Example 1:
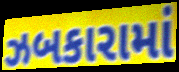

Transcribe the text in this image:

ઝબકારામાં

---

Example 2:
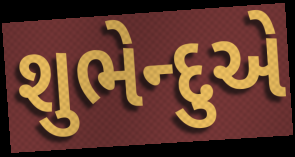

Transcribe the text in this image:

શુભેન્દુએ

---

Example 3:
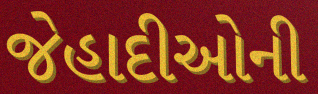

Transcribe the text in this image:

જેહાદીઓની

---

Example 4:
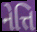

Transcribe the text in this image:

નેત્તિ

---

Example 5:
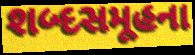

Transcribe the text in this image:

શબ્દસમૂહના